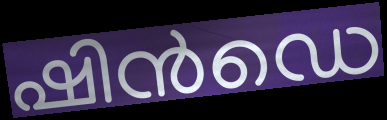
ഷിൻഡെ